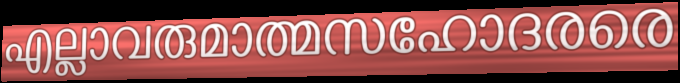
എല്ലാവരുമാത്മസഹോദരരെ